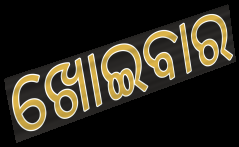
ଖୋଇବାର